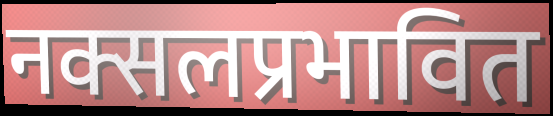
नक्सलप्रभावित